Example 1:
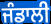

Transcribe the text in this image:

ਜੰਡਾਲੀ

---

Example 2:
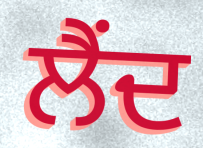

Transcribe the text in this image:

ਲੈਂਦ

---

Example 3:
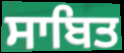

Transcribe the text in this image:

ਸਾਬਿਤ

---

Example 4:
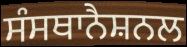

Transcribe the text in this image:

ਸੰਸਥਾਨੈਸ਼ਨਲ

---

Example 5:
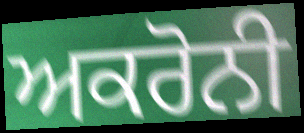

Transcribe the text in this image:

ਅਕਰੋਨੀ